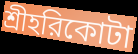
শ্রীহরিকোটা